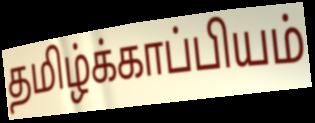
தமிழ்க்காப்பியம்